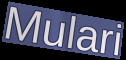
Mulari